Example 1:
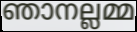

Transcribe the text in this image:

ഞാനല്ലമ്മ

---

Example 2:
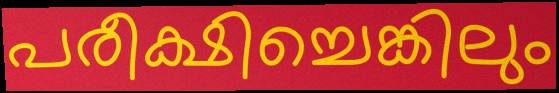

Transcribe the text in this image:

പരീക്ഷിച്ചെങ്കിലും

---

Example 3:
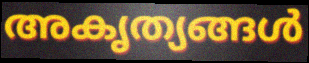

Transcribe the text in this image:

അകൃത്യങ്ങൾ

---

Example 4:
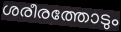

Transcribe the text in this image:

ശരീരത്തോടും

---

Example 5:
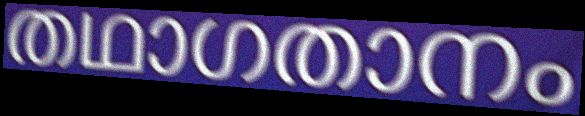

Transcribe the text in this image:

തഥാഗതാനം